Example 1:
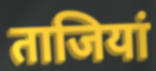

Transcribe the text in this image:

ताजियां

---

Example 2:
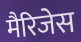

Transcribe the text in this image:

मैरिजेस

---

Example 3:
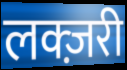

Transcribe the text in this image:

लक्ज़री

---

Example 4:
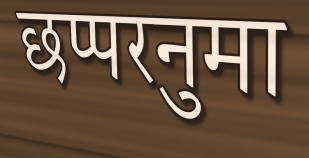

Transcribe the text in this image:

छप्परनुमा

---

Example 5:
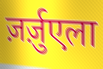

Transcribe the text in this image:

ज़र्ज़ुएला